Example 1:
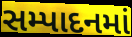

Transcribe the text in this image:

સમ્પાદનમાં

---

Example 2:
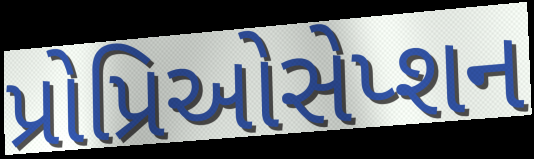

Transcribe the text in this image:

પ્રોપ્રિઓસેપ્શન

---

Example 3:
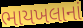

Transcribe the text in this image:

ભાયખલાનાં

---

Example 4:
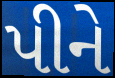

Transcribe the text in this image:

પીને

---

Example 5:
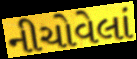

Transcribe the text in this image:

નીચોવેલાં